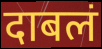
दाबलं